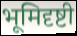
भूमिदृष्टी